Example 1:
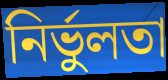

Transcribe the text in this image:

নির্ভুলতা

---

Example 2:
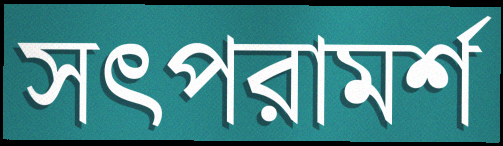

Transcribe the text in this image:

সৎপরামর্শ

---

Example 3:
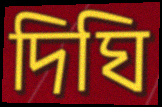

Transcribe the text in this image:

দিঘি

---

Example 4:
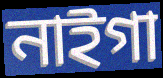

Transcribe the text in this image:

নাইগা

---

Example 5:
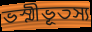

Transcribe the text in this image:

ভস্মীভূতস্য